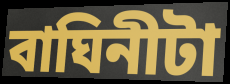
বাঘিনীটা